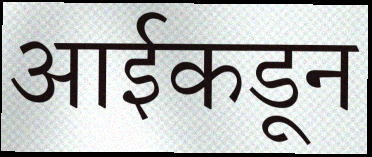
आईकडून